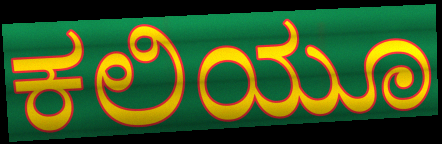
ಕಲಿಯೂ